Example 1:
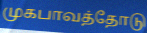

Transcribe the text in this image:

முகபாவத்தோடு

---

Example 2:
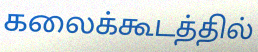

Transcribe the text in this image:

கலைக்கூடத்தில்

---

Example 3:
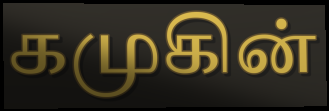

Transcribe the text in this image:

கமுகின்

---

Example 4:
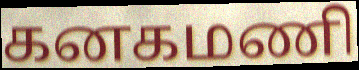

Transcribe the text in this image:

கனகமணி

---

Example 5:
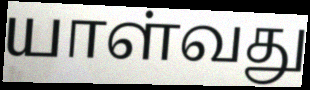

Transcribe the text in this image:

யாள்வது